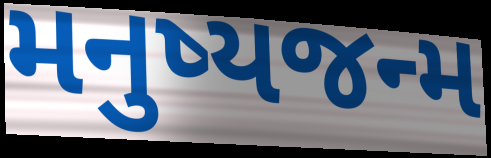
મનુષ્યજન્મ